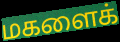
மகளைக்